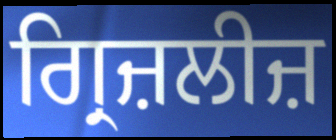
ਗ੍ਰਿਜ਼ਲੀਜ਼